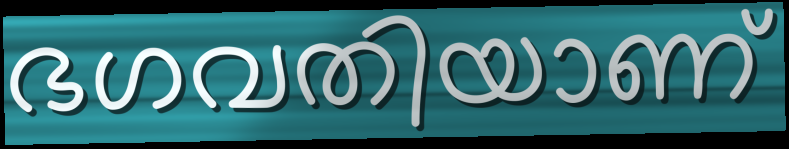
ഭഗവതിയാണ്